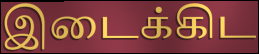
இடைக்கிட